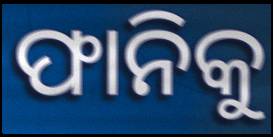
ଫାନିକୁ